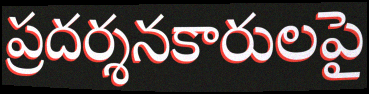
ప్రదర్శనకారులపై